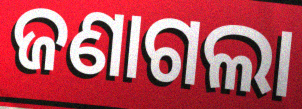
ଜଣାଗଲା